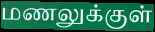
மணலுக்குள்